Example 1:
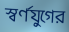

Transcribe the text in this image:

স্বর্ণযুগের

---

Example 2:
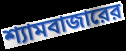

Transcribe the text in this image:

শ্যামবাজারের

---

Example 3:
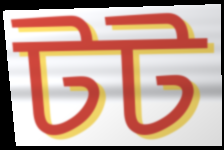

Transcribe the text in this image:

টট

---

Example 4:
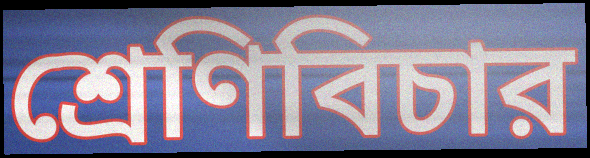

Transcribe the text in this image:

শ্রেণিবিচার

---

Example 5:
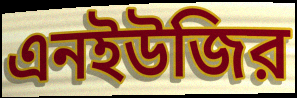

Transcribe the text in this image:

এনইউজির